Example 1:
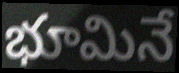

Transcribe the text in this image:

భూమినే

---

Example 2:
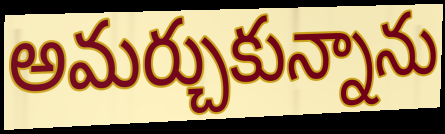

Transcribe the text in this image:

అమర్చుకున్నాను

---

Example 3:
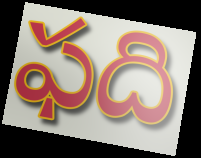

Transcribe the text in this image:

ఫది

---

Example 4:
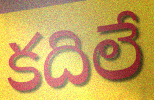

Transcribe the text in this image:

కదిలే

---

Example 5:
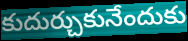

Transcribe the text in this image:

కుదుర్చుకునేందుకు